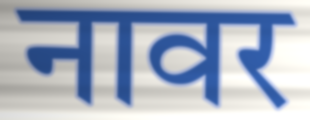
नावर